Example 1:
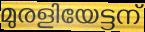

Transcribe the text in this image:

മുരളിയേട്ടന്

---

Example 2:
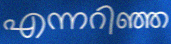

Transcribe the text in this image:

എന്നറിഞ്ഞ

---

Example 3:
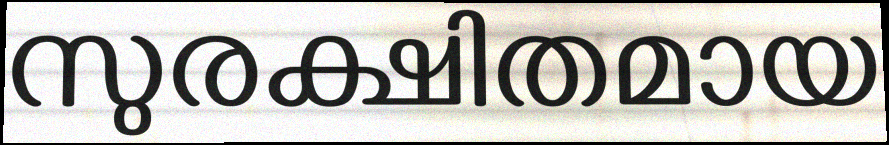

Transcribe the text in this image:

സുരക്ഷിതമായ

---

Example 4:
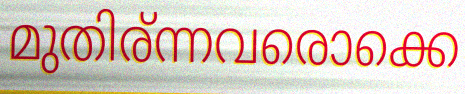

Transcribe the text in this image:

മുതിര്ന്നവരൊക്കെ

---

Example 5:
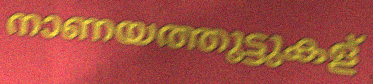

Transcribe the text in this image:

നാണയത്തുട്ടുകള്